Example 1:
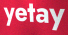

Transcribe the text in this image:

yetay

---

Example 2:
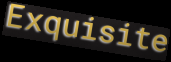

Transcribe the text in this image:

Exquisite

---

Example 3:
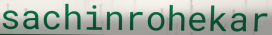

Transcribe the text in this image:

sachinrohekar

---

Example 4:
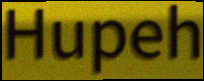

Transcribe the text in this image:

Hupeh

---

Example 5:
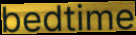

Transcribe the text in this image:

bedtime